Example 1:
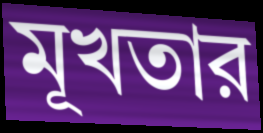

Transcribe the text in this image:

মূখতার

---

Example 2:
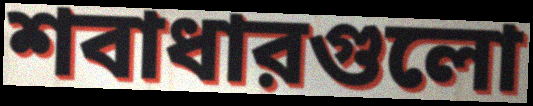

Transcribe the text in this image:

শবাধারগুলো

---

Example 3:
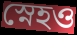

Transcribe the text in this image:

স্নেহও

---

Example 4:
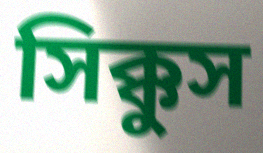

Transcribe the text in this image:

সিক্কুস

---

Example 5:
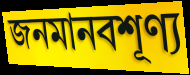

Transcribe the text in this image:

জনমানবশূণ্য